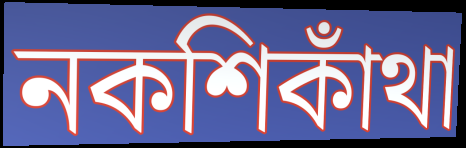
নকশিকাঁথা